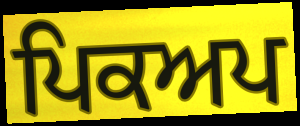
ਪਿਕਅਪ